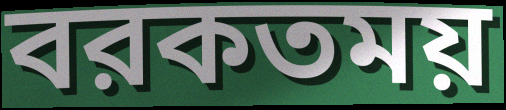
বরকতময়